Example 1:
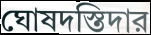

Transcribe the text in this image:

ঘোষদস্তিদার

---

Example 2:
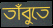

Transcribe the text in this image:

তাঁবুতে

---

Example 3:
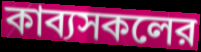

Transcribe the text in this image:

কাব্যসকলের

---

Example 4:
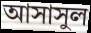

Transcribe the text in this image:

আসাসুল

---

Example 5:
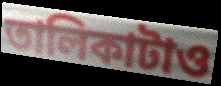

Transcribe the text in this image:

তালিকাটাও